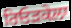
ਰਿਓੜਕੇਲਾ